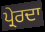
ਪ੍ਰੇਰਦਾ